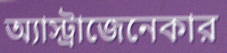
অ্যাস্ট্রাজেনেকার